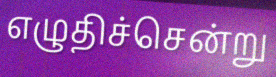
எழுதிச்சென்று